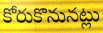
కోరుకొనునట్లు